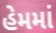
હેમમાં